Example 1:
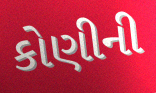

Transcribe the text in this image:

કોણીની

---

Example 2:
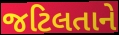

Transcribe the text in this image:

જટિલતાને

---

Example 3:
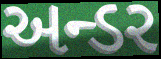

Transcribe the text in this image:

અન્ડર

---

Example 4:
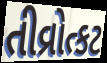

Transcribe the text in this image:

તીવ્રોત્કટ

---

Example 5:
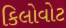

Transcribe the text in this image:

કિલોવોટ